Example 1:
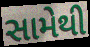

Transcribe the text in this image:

સામેથી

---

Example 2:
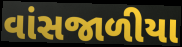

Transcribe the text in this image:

વાંસજાળીયા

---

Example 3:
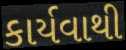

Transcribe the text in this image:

કાર્યવાથી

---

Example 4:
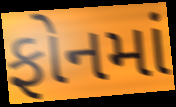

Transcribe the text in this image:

ફોનમાં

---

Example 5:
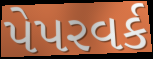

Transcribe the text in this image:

પેપરવર્ક